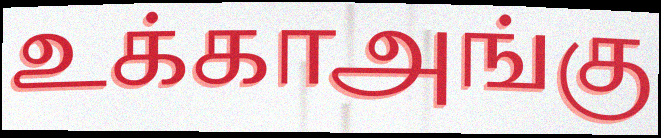
உக்காஅங்கு